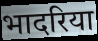
भादरिया